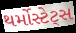
થર્મોસ્ટેટ્સ